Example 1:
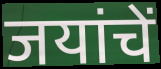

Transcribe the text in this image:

जयांचें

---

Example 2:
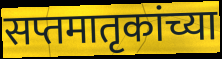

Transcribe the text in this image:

सप्तमातृकांच्या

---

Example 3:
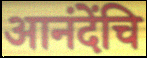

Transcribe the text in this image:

आनंदेंचि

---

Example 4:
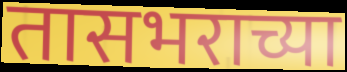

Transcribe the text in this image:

तासभराच्या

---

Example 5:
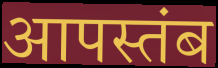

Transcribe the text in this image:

आपस्तंब